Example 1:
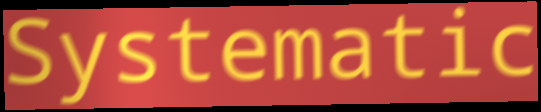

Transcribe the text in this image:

Systematic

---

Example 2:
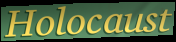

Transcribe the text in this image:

Holocaust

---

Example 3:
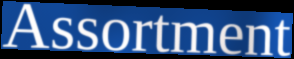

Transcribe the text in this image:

Assortment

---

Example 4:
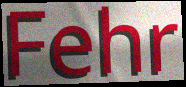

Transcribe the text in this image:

Fehr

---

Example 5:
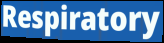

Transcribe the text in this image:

Respiratory